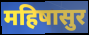
महिषासुर